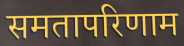
समतापरिणाम